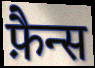
फ़ैन्स